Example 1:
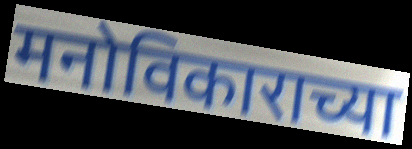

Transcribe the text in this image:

मनोविकाराच्या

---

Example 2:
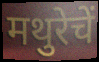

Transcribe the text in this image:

मथुरेचें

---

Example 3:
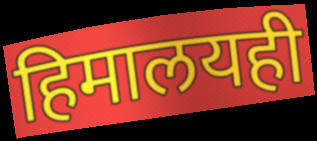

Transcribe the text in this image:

हिमालयही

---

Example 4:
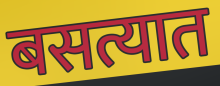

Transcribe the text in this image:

बसत्यात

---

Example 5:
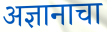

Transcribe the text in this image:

अज्ञानाचा